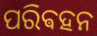
ପରିଵହନ